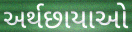
અર્થછાયાઓ